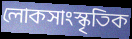
লোকসাংস্কৃতিক